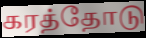
கரத்தோடு